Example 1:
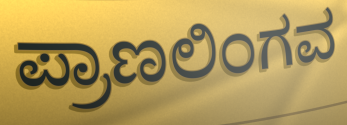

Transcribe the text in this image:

ಪ್ರಾಣಲಿಂಗವ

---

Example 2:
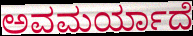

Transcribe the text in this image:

ಅವಮರ್ಯಾದೆ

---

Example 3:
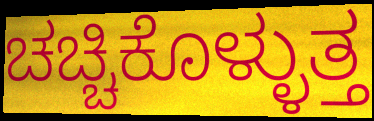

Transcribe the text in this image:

ಚಚ್ಚಿಕೊಳ್ಳುತ್ತ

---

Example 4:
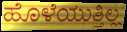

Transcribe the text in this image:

ಹೊಳೆಯುತ್ತಿಲ್ಲ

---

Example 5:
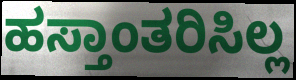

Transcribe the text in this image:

ಹಸ್ತಾಂತರಿಸಿಲ್ಲ